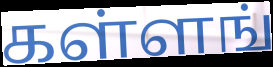
கள்ளங்